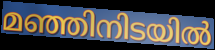
മഞ്ഞിനിടയിൽ